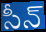
సీన్